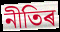
নীতিৰ